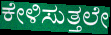
ಕೇಳಿಸುತ್ತಲೇ